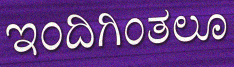
ಇಂದಿಗಿಂತಲೂ